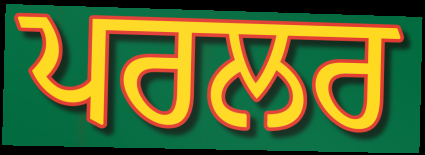
ਪਰਲਰ